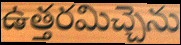
ఉత్తరమిచ్చెను